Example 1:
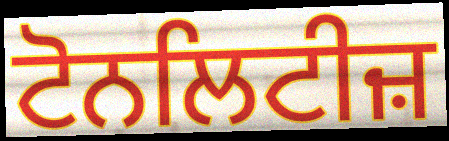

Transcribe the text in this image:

ਟੋਨਲਿਟੀਜ਼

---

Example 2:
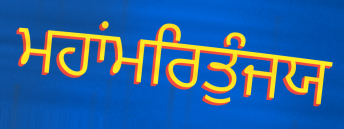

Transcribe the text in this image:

ਮਹਾਂਮਰਿਤੁੰਜਯ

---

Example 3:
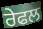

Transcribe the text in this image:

ਰੇਫਲ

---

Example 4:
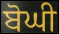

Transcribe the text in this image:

ਬੋਘੀ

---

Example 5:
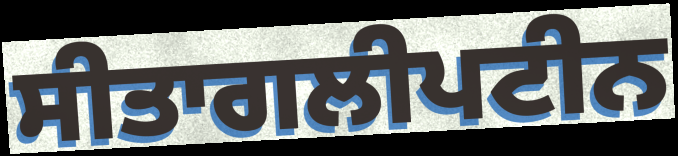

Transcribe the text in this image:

ਸੀਤਾਗਲੀਪਟੀਨ